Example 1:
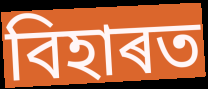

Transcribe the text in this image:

বিহাৰত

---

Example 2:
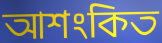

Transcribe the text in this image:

আশংকিত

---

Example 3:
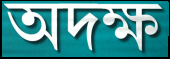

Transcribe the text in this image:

অদক্ষ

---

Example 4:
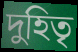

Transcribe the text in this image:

দুহিতৃ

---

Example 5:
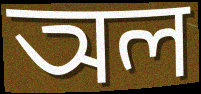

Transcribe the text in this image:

অল